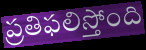
ప్రతిఫలిస్తోంది